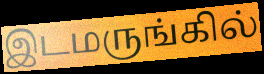
இடமருங்கில்